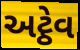
અટ્ઠેવ